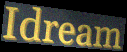
Idream